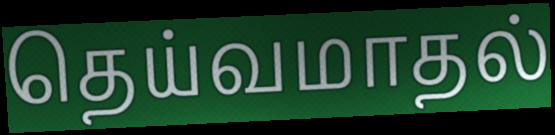
தெய்வமாதல்